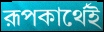
রূপকার্থেই